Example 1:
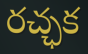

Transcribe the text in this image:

రచ్ఛక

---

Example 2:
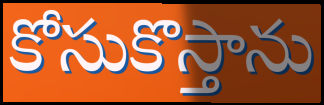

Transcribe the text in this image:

కోసుకొస్తాను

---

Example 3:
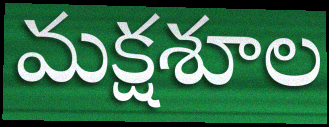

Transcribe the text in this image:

మక్షశూల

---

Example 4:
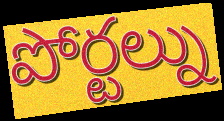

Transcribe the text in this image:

పోర్టల్ను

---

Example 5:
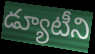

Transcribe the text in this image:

డ్యూటీని